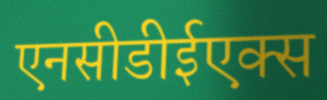
एनसीडीईएक्स